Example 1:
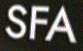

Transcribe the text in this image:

SFA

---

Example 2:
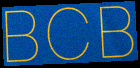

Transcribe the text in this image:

BCB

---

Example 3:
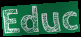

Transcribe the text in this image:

Educ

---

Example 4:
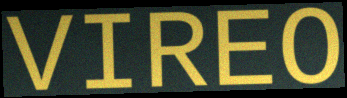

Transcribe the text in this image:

VIREO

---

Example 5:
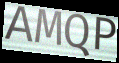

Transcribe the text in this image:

AMQP